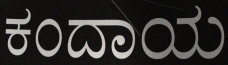
ಕಂದಾಯ